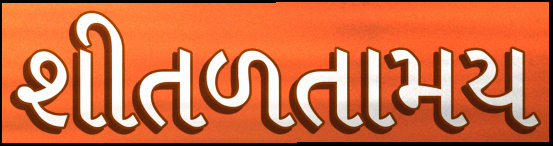
શીતળતામય